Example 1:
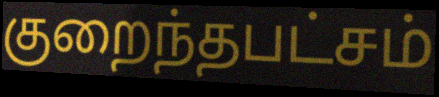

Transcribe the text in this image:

குறைந்தபட்சம்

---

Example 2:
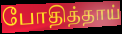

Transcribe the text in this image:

போதித்தாய்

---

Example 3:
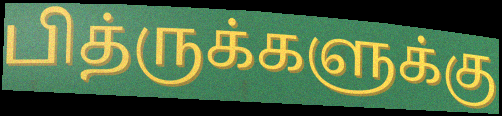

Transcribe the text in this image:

பித்ருக்களுக்கு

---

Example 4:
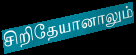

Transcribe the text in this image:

சிறிதேயானாலும்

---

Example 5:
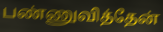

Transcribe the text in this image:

பண்ணுவித்தேன்